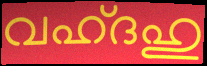
വഹ്ദഹു